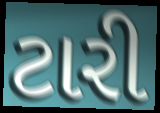
ટારી